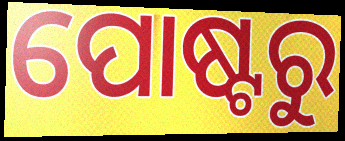
ପୋଷ୍ଟରୁ